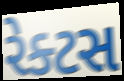
રેક્ટસ